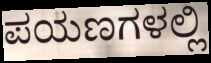
ಪಯಣಗಳಲ್ಲಿ